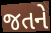
જતને